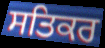
ਸਤਿਕਰ